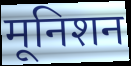
मूनिशन